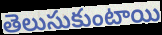
తెలుసుకుంటాయి